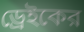
ড্রেইকের